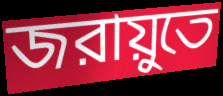
জরায়ুতে